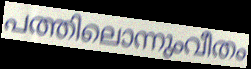
പത്തിലൊന്നുംവീതം